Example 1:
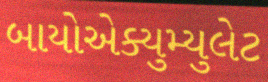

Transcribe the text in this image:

બાયોએક્યુમ્યુલેટ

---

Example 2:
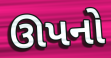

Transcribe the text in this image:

ઊપનો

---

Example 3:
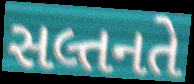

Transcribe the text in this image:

સલ્તનતે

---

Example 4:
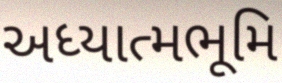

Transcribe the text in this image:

અધ્યાત્મભૂમિ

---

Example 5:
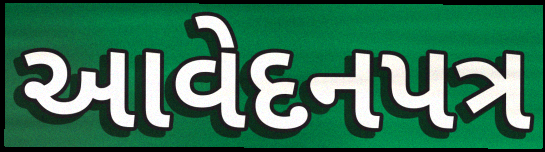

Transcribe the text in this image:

આવેદનપત્ર